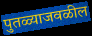
पुतळ्याजवळील